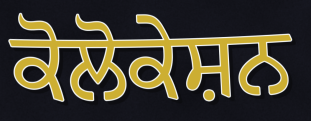
ਕੋਲੋਕੇਸ਼ਨ